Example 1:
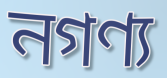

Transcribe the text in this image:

নগণ্য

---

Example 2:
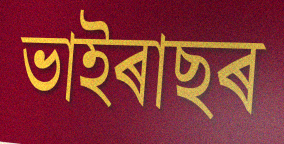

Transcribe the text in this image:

ভাইৰাছৰ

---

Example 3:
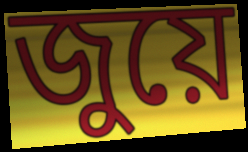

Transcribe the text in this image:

জুয়ে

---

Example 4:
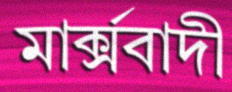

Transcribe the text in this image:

মাৰ্ক্সবাদী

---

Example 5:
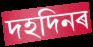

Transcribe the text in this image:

দহদিনৰ